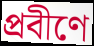
প্রবীণে